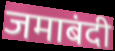
जमाबंदी